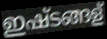
ഇഷ്ടങ്ങള്